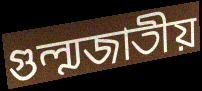
গুল্মজাতীয়